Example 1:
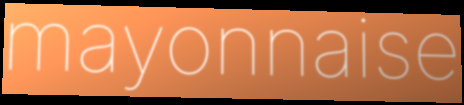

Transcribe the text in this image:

mayonnaise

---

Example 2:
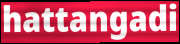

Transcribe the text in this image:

hattangadi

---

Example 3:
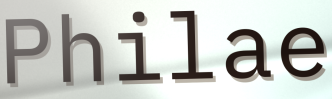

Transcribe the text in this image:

Philae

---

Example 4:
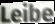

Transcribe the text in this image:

Leibe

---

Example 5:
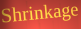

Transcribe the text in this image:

Shrinkage